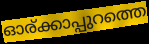
ഓര്ക്കാപ്പുറത്തെ